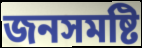
জনসমষ্টি